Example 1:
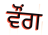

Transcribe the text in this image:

ਵੌਂਗ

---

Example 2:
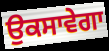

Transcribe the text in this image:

ਉਕਸਾਵੇਗਾ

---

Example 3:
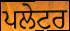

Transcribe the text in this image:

ਪਲੇਟਰ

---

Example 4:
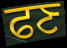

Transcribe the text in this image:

ਫਣ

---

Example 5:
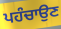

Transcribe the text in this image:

ਪਹੰਚਾਉਣ